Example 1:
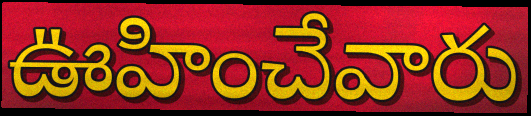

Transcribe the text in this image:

ఊహించేవారు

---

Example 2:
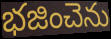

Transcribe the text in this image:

భజించెను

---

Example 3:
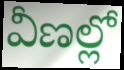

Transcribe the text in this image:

వీణల్లో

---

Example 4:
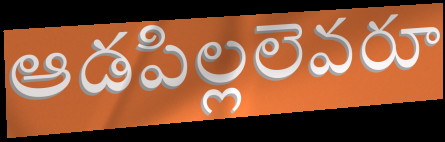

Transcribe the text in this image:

ఆడపిల్లలెవరూ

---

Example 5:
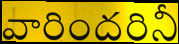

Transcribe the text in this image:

వారిందరినీ